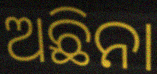
ଅଛିନା